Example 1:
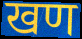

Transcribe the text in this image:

खण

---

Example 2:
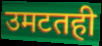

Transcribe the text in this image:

उमटतही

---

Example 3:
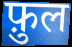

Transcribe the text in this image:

फ़ुल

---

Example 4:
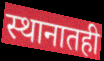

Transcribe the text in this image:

स्थानातही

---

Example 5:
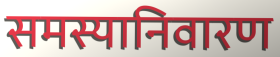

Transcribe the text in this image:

समस्यानिवारण